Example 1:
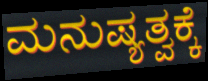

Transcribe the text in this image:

ಮನುಷ್ಯತ್ವಕ್ಕೆ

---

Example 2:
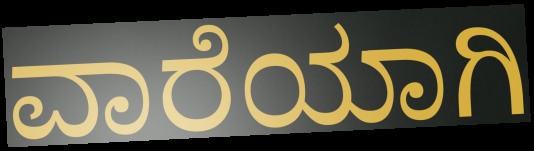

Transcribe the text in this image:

ವಾರೆಯಾಗಿ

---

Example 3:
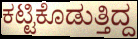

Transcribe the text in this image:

ಕಟ್ಟಿಕೊಡುತ್ತಿದ್ದ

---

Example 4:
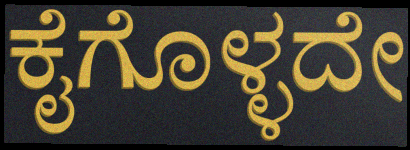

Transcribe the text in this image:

ಕೈಗೊಳ್ಳದೇ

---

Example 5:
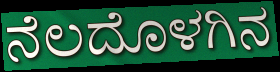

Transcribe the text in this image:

ನೆಲದೊಳಗಿನ